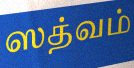
ஸத்வம்